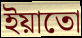
ইয়াতো